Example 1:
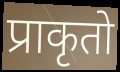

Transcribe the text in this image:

प्राकृतो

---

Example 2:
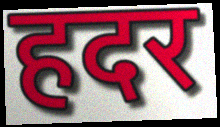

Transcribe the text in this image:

हदर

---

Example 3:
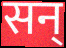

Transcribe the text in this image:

सन्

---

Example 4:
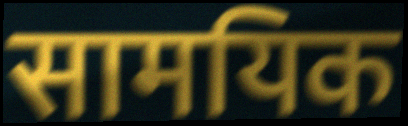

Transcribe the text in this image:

सामयिक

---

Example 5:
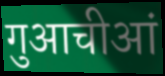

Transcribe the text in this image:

गुआचीआं